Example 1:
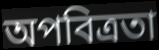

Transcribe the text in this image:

অপবিত্রতা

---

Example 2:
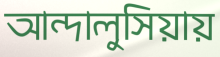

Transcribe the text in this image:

আন্দালুসিয়ায়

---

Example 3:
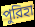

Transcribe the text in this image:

পুরিহা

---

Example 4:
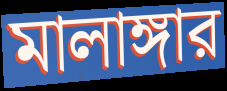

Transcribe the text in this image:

মালাঙ্গার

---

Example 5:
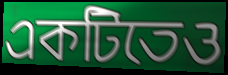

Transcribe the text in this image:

একটিতেও